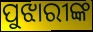
ପୁଝାରୀଙ୍କ